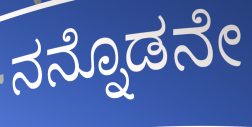
ನನ್ನೊಡನೇ